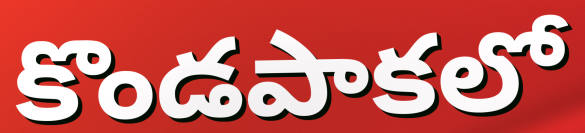
కొండపాకలో